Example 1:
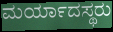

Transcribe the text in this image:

ಮರ್ಯಾದಸ್ಥರು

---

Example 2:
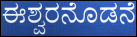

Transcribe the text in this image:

ಈಶ್ವರನೊಡನೆ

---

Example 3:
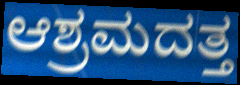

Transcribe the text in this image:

ಆಶ್ರಮದತ್ತ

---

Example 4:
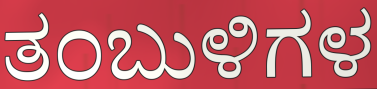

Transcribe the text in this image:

ತಂಬುಳಿಗಳ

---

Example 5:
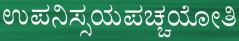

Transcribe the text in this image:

ಉಪನಿಸ್ಸಯಪಚ್ಚಯೋತಿ